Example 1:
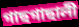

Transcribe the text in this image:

গাছগাছালী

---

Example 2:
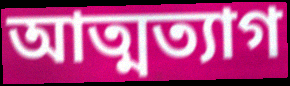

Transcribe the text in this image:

আত্মত্যাগ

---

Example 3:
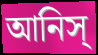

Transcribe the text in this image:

আনিস্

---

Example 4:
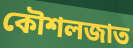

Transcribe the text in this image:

কৌশলজাত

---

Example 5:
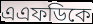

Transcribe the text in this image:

এএফডিকে